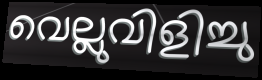
വെല്ലുവിളിച്ചു